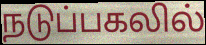
நடுப்பகலில்